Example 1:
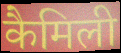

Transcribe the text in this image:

कैमिली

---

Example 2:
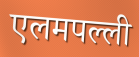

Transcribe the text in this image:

एलमपल्ली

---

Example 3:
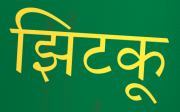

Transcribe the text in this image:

झिटकू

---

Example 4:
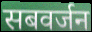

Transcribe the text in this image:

सबवर्जन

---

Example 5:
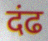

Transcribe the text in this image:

दंढ